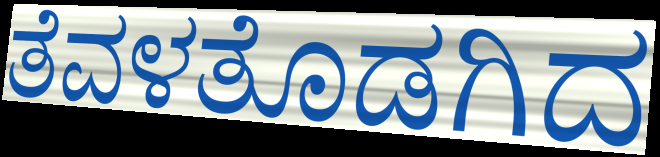
ತೆವಳತೊಡಗಿದ